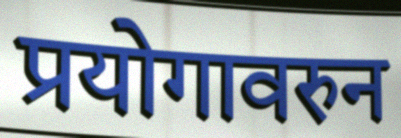
प्रयोगावरुन